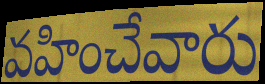
వహించేవారు